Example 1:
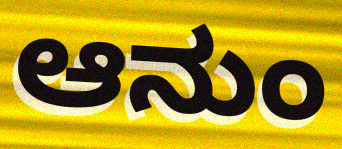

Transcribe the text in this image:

ಆನುಂ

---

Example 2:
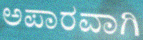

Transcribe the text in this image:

ಅಪಾರವಾಗಿ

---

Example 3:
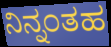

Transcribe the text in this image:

ನಿನ್ನಂತಹ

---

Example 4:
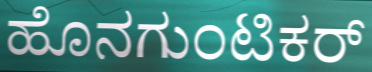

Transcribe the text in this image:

ಹೊನಗುಂಟಿಕರ್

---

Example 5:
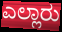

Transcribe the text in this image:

ಎಲ್ಲಾರು